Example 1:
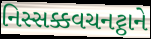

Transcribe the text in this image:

નિસ્સક્કવચનટ્ઠાને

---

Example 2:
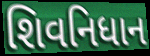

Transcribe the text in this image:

શિવનિધાન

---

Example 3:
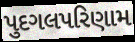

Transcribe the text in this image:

પુદગલપરિણામ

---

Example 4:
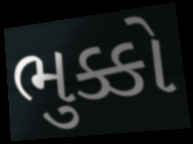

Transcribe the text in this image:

ભુક્કો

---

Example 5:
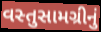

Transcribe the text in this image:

વસ્તુસામગ્રીનું